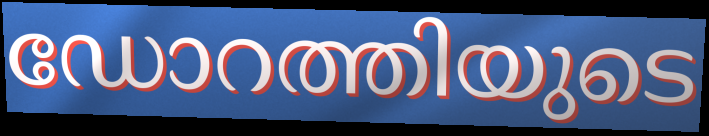
ഡോറത്തിയുടെ